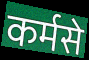
कर्मसे